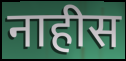
नाहीस